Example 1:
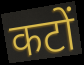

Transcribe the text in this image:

कटों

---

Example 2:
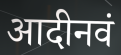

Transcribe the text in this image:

आदीनवं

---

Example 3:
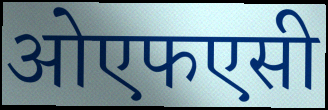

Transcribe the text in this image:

ओएफएसी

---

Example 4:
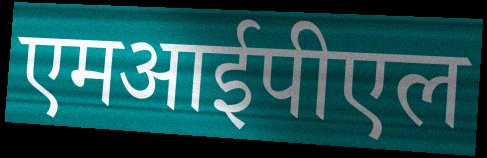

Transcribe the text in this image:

एमआईपीएल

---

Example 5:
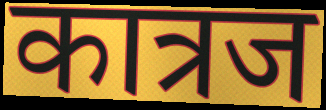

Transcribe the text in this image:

कात्रज